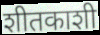
शीतकाशी